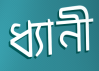
ধ্যানী